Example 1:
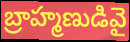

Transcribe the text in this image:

బ్రాహ్మణుడివై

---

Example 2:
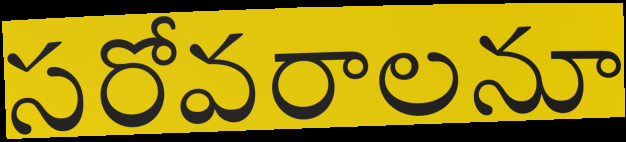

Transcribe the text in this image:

సరోవరాలనూ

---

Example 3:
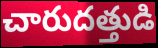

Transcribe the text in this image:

చారుదత్తుడి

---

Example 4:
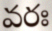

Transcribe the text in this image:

వరః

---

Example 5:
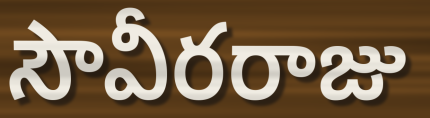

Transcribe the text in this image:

సౌవీరరాజు